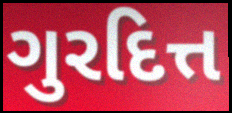
ગુરદિત્ત